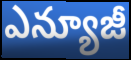
ఎన్యూజీ